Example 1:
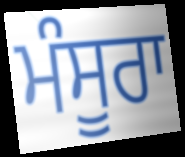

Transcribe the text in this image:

ਮੰਸੂਰਾ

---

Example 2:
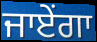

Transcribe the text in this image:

ਜਾਏਂਗਾ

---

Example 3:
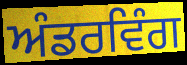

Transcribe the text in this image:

ਅੰਡਰਵਿੰਗ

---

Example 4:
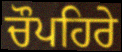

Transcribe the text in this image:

ਚੌਪਹਿਰੇ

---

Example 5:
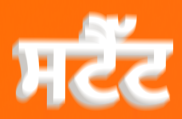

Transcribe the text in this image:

ਸਟੈੱਟ